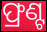
ଫ୍ରଣ୍ଟ